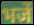
भजें